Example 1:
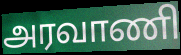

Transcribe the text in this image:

அரவாணி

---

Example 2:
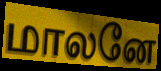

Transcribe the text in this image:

மாலனே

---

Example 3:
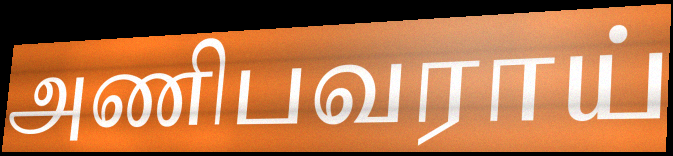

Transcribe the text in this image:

அணிபவராய்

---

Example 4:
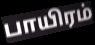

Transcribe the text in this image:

பாயிரம்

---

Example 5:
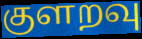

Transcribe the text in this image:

குளறவு